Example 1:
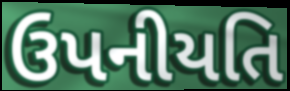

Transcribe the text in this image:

ઉપનીયતિ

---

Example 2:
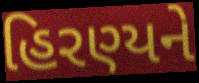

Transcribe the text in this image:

હિરણ્યને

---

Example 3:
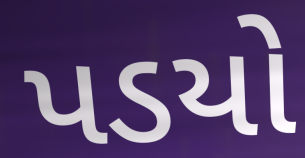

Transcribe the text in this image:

પડયો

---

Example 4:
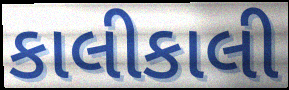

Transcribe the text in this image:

કાલીકાલી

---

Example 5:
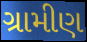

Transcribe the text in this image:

ગ્રામીણ